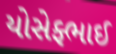
યોસેફ્ભાઈ